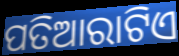
ପତିଆରାଟିଏ